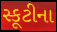
સ્કૂટીના